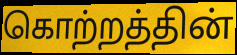
கொற்றத்தின்